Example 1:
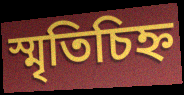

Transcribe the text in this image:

স্মৃতিচিহ্ন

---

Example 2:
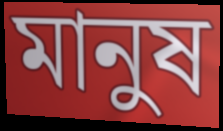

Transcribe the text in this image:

মানুষ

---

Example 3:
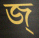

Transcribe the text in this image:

জ্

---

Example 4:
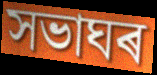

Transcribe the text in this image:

সভাঘৰ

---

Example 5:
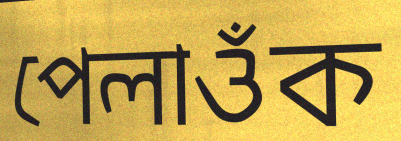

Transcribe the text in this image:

পেলাওঁক